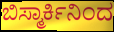
ಬಿಸ್ಮಾರ್ಕಿನಿಂದ